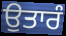
ਉਤਾਰੰ